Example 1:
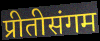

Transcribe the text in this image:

प्रीतीसंगम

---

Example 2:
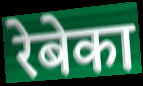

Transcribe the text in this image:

रेबेका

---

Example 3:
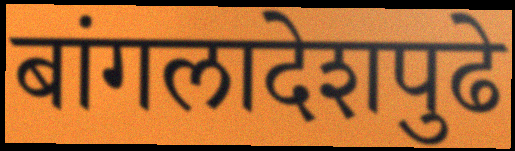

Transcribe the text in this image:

बांगलादेशपुढे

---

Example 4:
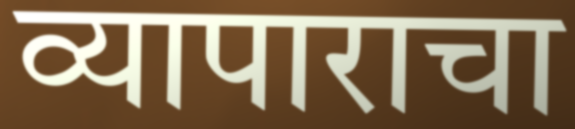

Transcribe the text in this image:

व्यापाराचा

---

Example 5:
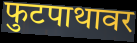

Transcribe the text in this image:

फुटपाथावर